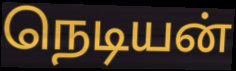
நெடியன்